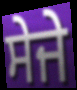
ਸੇਜੇ